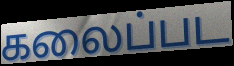
கலைப்பட